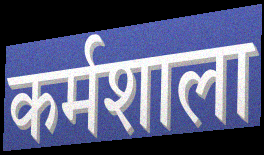
कर्मशाला